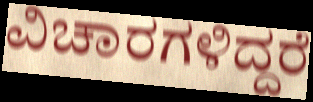
ವಿಚಾರಗಳಿದ್ದರೆ